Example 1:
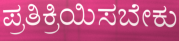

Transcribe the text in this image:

ಪ್ರತಿಕ್ರಿಯಿಸಬೇಕು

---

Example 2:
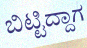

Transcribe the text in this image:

ಬಿಟ್ಟಿದ್ದಾಗ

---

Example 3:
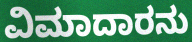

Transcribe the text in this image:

ವಿಮಾದಾರನು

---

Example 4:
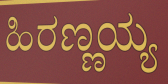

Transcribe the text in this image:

ಹಿರಣ್ಣಯ್ಯ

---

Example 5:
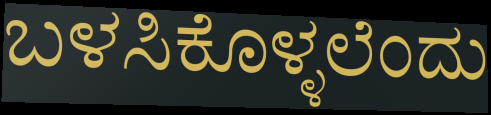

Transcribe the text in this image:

ಬಳಸಿಕೊಳ್ಳಲೆಂದು